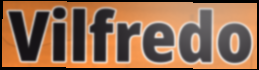
Vilfredo